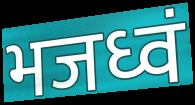
भजध्वं